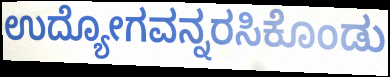
ಉದ್ಯೋಗವನ್ನರಸಿಕೊಂಡು